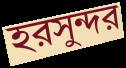
হরসুন্দর